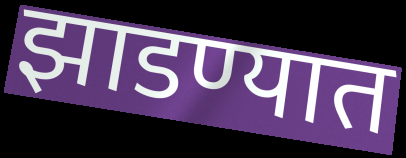
झाडण्यात